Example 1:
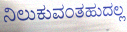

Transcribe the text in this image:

ನಿಲುಕುವಂತಹುದಲ್ಲ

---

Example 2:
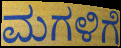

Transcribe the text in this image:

ಮಗಳಿಗೆ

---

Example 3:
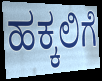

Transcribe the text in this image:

ಹಕ್ಕಲಿಗೆ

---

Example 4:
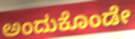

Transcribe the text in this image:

ಅಂದುಕೊಂಡೇ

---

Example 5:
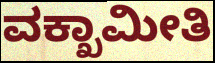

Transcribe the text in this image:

ವಕ್ಖಾಮೀತಿ